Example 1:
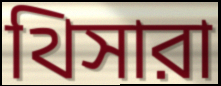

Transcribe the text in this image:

থিসারা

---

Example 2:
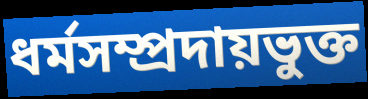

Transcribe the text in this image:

ধর্মসম্প্রদায়ভুক্ত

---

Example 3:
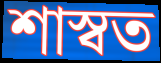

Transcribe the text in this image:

শাস্বত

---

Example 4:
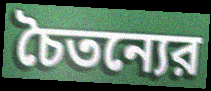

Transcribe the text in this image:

চৈতন্যের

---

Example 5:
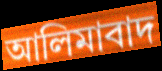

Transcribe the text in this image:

আলিমাবাদ